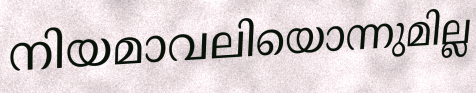
നിയമാവലിയൊന്നുമില്ല